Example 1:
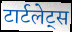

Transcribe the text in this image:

टार्टलेट्स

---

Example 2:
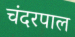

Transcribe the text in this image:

चंदरपाल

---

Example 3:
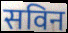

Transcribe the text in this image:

सविन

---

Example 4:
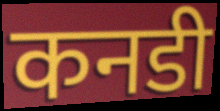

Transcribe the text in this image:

कनडी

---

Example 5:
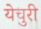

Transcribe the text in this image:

येचुरी